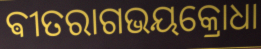
ଵୀତରାଗଭୟକ୍ରୋଧା